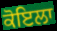
ਕੋਇਲਾ